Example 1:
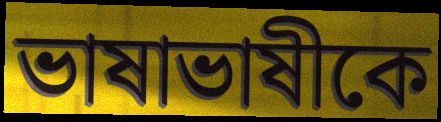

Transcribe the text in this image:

ভাষাভাষীকে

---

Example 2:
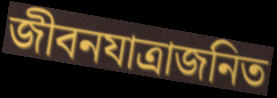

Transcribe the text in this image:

জীবনযাত্রাজনিত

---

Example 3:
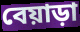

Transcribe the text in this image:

বেয়াড়া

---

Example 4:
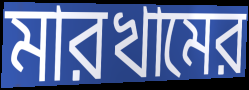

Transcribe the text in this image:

মারখামের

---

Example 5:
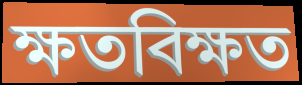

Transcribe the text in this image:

ক্ষতবিক্ষত